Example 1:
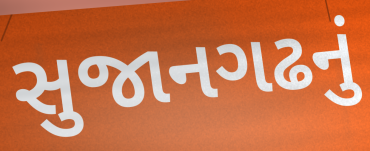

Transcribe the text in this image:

સુજાનગઢનું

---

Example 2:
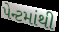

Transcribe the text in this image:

પેન્ટમાંથી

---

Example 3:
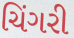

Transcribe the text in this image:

ચિંગરી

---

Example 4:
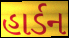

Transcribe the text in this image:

હાર્ડન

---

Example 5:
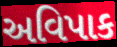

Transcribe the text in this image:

અવિપાક